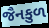
જૈનકુળ